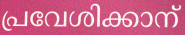
പ്രവേശിക്കാന്